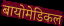
बायोमेडिकल